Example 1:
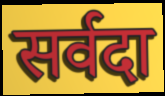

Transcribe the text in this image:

सर्वदा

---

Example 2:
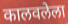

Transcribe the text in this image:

कालवलेला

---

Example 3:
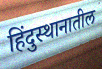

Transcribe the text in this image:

हिंदुस्थानातील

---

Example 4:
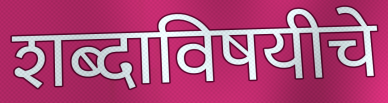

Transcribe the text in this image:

शब्दाविषयीचे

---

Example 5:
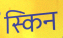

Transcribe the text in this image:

स्किन